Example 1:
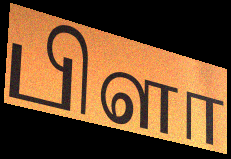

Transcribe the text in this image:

பிளா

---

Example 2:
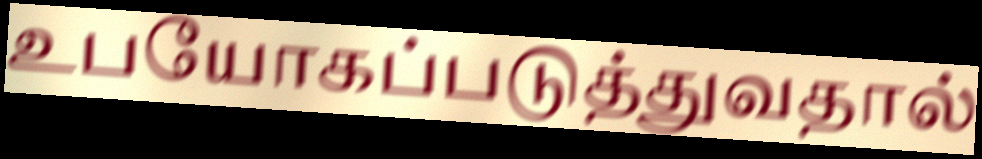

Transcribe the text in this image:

உபயோகப்படுத்துவதால்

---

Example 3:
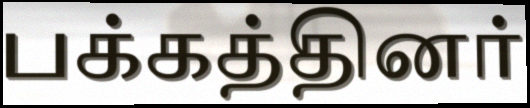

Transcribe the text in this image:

பக்கத்தினர்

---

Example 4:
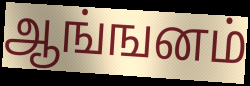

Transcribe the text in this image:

ஆங்ஙனம்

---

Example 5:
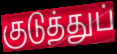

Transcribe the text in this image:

குடுத்துப்